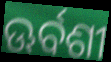
ଊର୍ବଶୀ